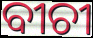
ବୀଚୀ